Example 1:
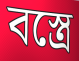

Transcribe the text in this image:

বস্ত্রে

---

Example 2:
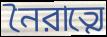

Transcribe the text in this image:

নৈরাত্মে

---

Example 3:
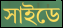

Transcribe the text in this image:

সাইডে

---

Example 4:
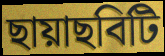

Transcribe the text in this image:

ছায়াছবিটি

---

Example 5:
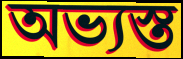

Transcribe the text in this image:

অভ্যস্ত